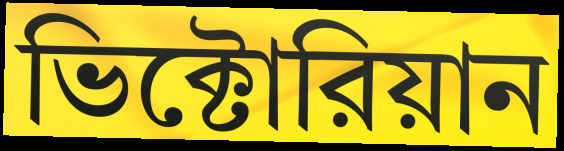
ভিক্টোরিয়ান